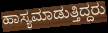
ಹಾಸ್ಯಮಾಡುತ್ತಿದ್ದರು